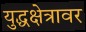
युद्धक्षेत्रावर